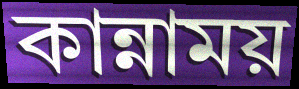
কান্নাময়